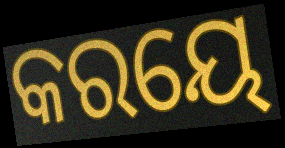
କରୟେ